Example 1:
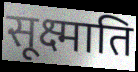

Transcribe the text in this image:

सूक्ष्माति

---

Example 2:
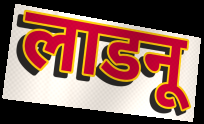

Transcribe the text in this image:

लाडनू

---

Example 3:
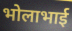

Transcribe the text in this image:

भोलाभाई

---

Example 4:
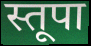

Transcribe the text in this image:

स्तूपा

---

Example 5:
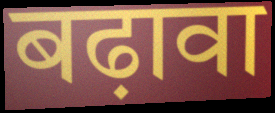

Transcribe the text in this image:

बढ़ावा